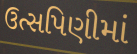
ઉત્સપિણીમાં